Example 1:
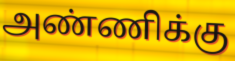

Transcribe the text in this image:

அண்ணிக்கு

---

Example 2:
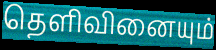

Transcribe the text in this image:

தெளிவினையும்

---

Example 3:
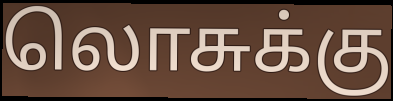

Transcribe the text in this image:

லொசுக்கு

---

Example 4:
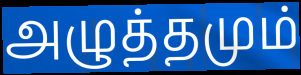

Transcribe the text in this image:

அழுத்தமும்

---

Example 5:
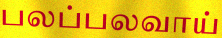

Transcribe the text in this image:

பலப்பலவாய்